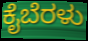
ಕೈಬೆರಳು